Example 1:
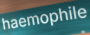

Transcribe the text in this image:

haemophile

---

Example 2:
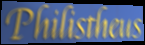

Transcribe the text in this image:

Philistheus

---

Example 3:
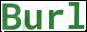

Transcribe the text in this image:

Burl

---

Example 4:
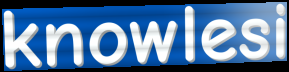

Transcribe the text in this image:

knowlesi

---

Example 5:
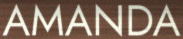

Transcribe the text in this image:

AMANDA